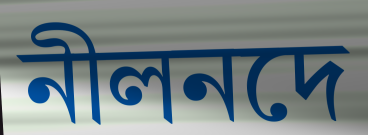
নীলনদে